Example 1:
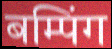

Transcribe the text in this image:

बम्पिंग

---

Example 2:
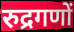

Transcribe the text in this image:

रुद्रगणों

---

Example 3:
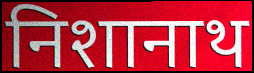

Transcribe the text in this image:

निशानाथ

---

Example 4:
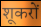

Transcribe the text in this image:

शूकरों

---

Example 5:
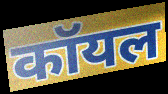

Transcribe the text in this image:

कॉयल